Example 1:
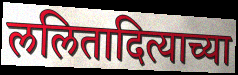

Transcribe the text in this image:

ललितादित्याच्या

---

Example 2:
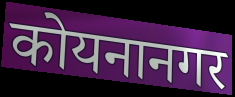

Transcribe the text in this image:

कोयनानगर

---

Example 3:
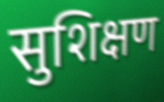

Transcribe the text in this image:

सुशिक्षण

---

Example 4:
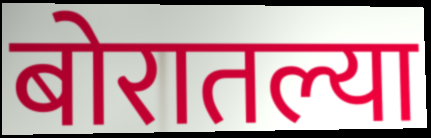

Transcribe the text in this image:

बोरातल्या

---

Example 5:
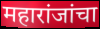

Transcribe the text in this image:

महारांजांचा